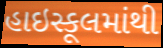
હાઇસ્કૂલમાંથી